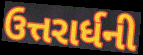
ઉત્તરાર્ધની